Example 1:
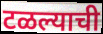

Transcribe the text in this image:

टळल्याची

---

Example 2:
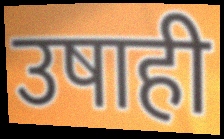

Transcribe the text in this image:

उषाही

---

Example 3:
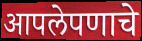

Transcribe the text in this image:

आपलेपणाचे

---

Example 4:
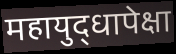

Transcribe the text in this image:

महायुद्धापेक्षा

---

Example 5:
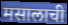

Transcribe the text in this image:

मसालाची